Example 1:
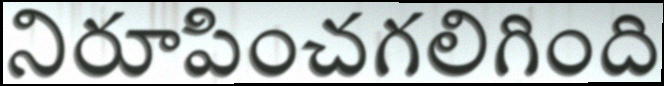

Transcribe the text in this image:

నిరూపించగలిగింది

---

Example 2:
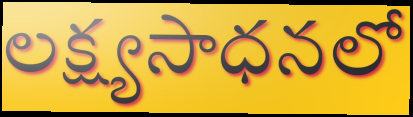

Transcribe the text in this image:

లక్ష్యసాధనలో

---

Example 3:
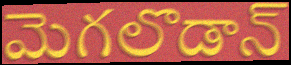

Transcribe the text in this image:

మెగలొడాన్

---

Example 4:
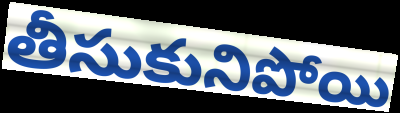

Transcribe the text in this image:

తీసుకునిపోయి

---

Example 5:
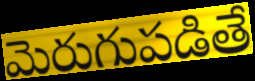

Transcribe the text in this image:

మెరుగుపడితే